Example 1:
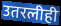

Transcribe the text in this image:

उतरलीही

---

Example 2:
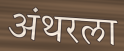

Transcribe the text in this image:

अंथरला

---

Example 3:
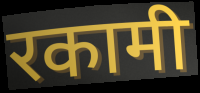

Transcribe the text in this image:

रकामी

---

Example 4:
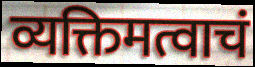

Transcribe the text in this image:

व्यक्तिमत्वाचं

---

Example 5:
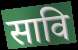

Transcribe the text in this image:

सावि